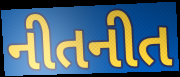
નીતનીત